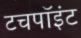
टचपॉइंट